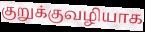
குறுக்குவழியாக